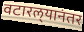
वटारल्यानंतर